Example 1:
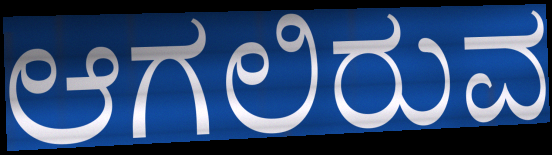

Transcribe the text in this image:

ಆಗಲಿರುವ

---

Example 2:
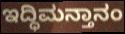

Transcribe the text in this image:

ಇದ್ಧಿಮನ್ತಾನಂ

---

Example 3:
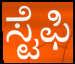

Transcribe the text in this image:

ಸ್ಟೆಫಿ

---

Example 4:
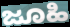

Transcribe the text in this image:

ಜೂಹಿ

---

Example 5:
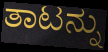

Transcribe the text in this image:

ತಾಟನ್ನು